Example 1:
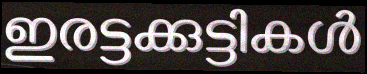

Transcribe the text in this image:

ഇരട്ടക്കുട്ടികൾ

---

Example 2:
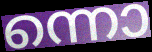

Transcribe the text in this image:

ന്നൊ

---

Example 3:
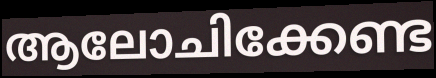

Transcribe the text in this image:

ആലോചിക്കേണ്ട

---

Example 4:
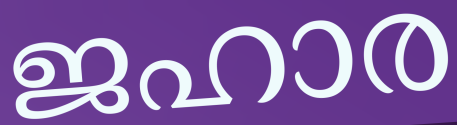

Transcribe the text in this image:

ജഹാര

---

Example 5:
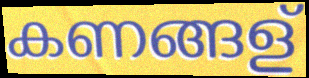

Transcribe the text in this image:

കണങ്ങള്